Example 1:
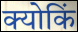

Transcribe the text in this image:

क्योकिं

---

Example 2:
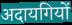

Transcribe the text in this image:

अदायगियों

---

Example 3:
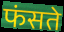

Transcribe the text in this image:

फंसते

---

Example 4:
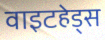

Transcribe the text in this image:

वाइटहेड्स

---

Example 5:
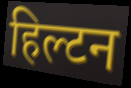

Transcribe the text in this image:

हिल्टन